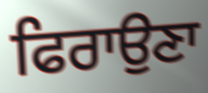
ਫਿਰਾਉਣਾ